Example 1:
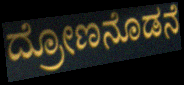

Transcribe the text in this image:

ದ್ರೋಣನೊಡನೆ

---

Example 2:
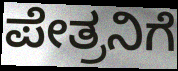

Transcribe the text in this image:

ಪೇತ್ರನಿಗೆ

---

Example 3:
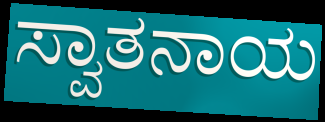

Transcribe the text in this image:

ಸ್ವಾತನಾಯ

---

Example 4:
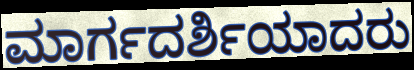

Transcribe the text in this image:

ಮಾರ್ಗದರ್ಶಿಯಾದರು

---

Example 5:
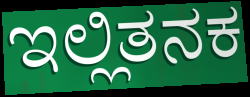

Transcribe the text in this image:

ಇಲ್ಲಿತನಕ